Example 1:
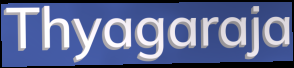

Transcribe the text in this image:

Thyagaraja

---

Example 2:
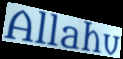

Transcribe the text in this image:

Allahu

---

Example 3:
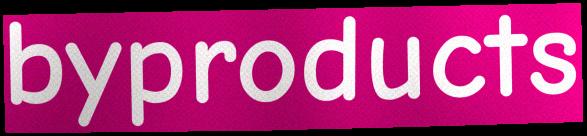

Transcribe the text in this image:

byproducts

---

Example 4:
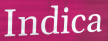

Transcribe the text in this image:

Indica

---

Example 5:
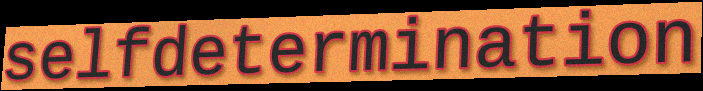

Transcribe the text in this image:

selfdetermination